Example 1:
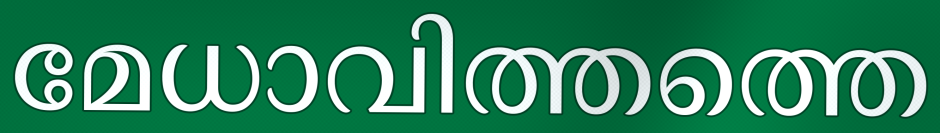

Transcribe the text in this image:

മേധാവിത്തത്തെ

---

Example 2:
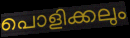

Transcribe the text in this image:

പൊളിക്കലും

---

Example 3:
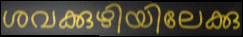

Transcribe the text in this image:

ശവക്കുഴിയിലേക്കു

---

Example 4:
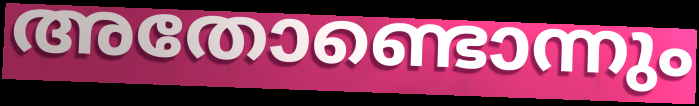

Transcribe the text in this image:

അതോണ്ടൊന്നും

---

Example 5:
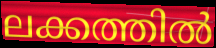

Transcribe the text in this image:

ലക്കത്തിൽ